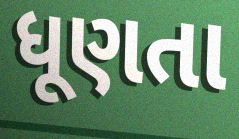
ધૂણતા